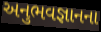
અનુભવજ્ઞાનના